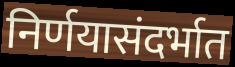
निर्णयासंदर्भात